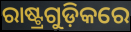
ରାଷ୍ଟ୍ରଗୁଡ଼ିକରେ